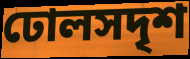
ঢোলসদৃশ